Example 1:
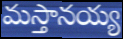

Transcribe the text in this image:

మస్తానయ్య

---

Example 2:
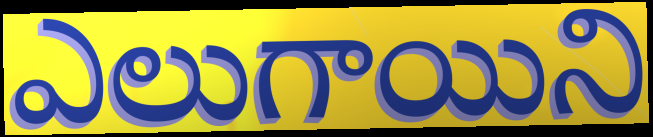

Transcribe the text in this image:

ఎలుగాయిని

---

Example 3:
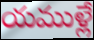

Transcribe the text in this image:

యముళ్లే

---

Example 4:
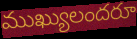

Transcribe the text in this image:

ముఖ్యులందరూ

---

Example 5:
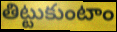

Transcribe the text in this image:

తిట్టుకుంటాం